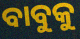
ବାବୁକୁ